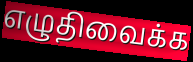
எழுதிவைக்க